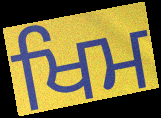
ਖਿਮ